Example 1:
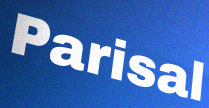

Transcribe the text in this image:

Parisal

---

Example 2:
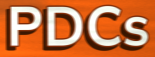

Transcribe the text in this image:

PDCs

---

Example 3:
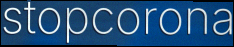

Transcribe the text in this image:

stopcorona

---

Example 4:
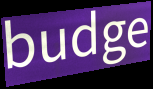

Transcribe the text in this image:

budge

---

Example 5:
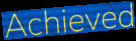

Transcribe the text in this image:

Achieved